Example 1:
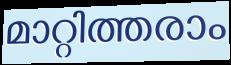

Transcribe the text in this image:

മാറ്റിത്തരാം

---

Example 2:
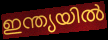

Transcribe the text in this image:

ഇന്ത്യയിൽ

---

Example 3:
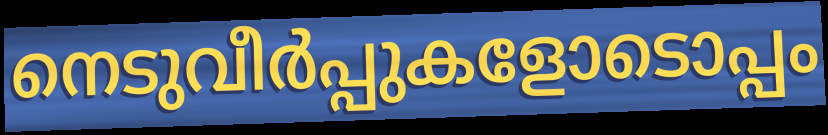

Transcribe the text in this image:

നെടുവീർപ്പുകളോടൊപ്പം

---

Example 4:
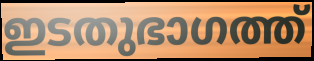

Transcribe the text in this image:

ഇടതുഭാഗത്ത്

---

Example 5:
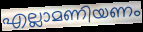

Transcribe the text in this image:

എല്ലാമണിയണം